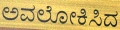
ಅವಲೋಕಿಸಿದ